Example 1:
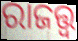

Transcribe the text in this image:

ରାଜତ୍ତ୍ୱ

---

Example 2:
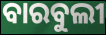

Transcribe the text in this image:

ବାରବୁଲୀ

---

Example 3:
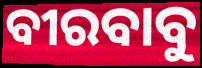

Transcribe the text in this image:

ବୀରବାବୁ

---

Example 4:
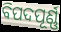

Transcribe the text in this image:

ବିପଦପୂର୍ଣ୍ଣ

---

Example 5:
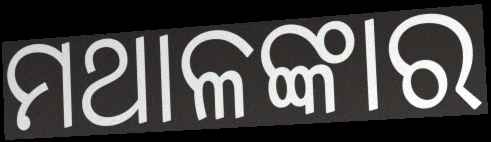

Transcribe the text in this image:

ମଥାଳଙ୍କାର